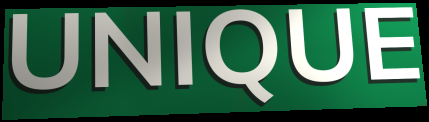
UNIQUE